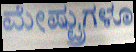
ಮೇಷ್ಟ್ರುಗಳೂ